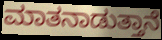
ಮಾತನಾಡುತ್ತಾನೆ